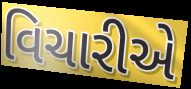
વિચારીએ